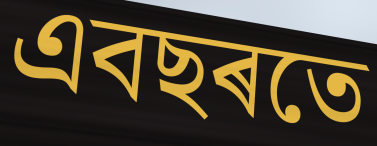
এবছৰতে